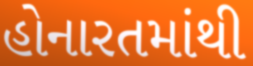
હોનારતમાંથી